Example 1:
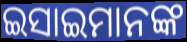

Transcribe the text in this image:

ଇସାଇମାନଙ୍କ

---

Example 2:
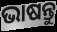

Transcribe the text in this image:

ଭାଷନ୍ତୁ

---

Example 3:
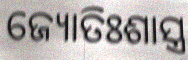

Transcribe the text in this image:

ଜ୍ୟୋତିଃଶାସ୍ତ୍ର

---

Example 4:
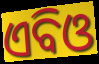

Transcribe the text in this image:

ଏବିଓ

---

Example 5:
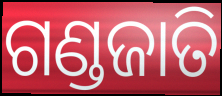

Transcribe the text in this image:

ଗଣ୍ଡଜାତି